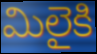
మిలైకి